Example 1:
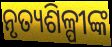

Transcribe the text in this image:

ନୃତ୍ୟଶିଳ୍ପୀଙ୍କ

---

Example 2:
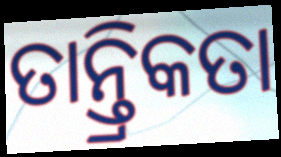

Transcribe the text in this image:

ତାନ୍ତ୍ରିକତା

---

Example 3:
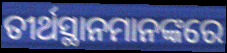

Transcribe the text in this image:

ତୀର୍ଥସ୍ଥାନମାନଙ୍କରେ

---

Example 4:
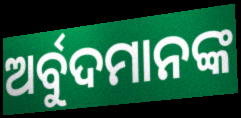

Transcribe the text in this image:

ଅର୍ବୁଦମାନଙ୍କ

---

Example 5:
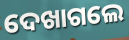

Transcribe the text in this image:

ଦେଖାଗଲେ